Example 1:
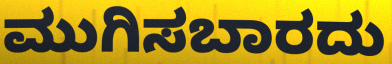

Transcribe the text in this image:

ಮುಗಿಸಬಾರದು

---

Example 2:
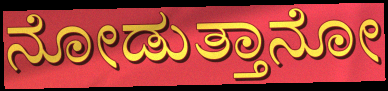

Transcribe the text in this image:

ನೋಡುತ್ತಾನೋ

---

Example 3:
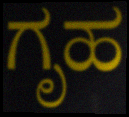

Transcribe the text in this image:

ಗೃಹ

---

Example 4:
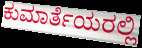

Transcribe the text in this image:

ಕುಮಾರ್ತೆಯರಲ್ಲಿ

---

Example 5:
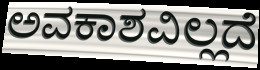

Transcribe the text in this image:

ಅವಕಾಶವಿಲ್ಲದೆ